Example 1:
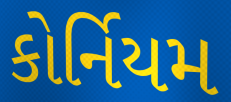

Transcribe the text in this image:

કોર્નિયમ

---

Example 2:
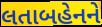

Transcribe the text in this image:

લતાબહેનને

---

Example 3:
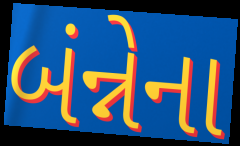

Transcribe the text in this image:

બંન્નેના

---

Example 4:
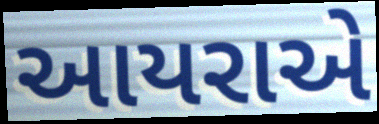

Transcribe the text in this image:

આયરાએ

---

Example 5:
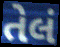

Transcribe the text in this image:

તેલં